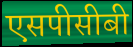
एसपीसीबी